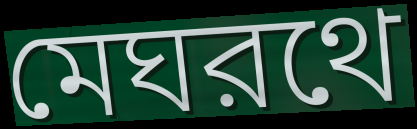
মেঘরথে